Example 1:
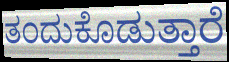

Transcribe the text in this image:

ತಂದುಕೊಡುತ್ತಾರೆ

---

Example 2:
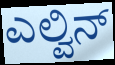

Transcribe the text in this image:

ಎಲ್ವಿನ್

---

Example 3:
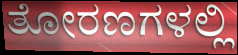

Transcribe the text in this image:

ತೋರಣಗಳಲ್ಲಿ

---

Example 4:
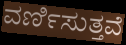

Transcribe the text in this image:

ವರ್ಣಿಸುತ್ತವೆ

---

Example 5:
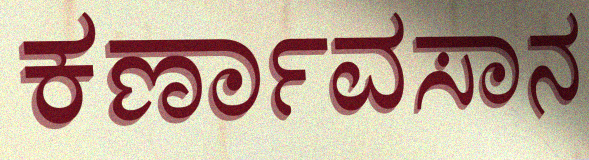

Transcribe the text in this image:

ಕರ್ಣಾವಸಾನ